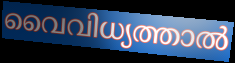
വൈവിധ്യത്താൽ